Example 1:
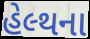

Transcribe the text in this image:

હેલ્થના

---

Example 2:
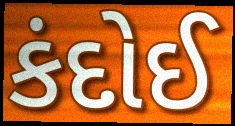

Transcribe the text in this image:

કંદોઈ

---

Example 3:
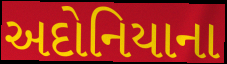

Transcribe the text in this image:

અદોનિયાના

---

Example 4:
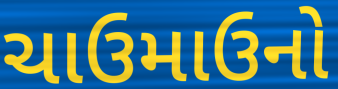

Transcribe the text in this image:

ચાઉમાઉનો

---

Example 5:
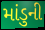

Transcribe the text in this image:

માંડુની